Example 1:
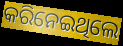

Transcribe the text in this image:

କରିନେଇଥିଲେ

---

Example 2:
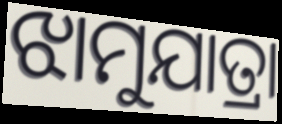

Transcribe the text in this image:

ଝାମୁଯାତ୍ରା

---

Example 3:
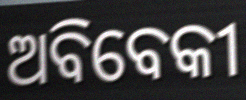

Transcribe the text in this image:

ଅବିବେକୀ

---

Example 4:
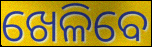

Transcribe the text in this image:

ଖେଳିବେ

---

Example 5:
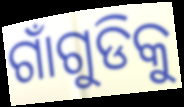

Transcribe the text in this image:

ଗାଁଗୁଡିକୁ